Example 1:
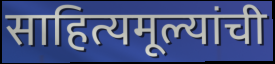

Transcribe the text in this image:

साहित्यमूल्यांची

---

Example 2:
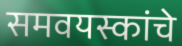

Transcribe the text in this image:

समवयस्कांचे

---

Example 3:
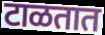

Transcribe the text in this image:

टाळतात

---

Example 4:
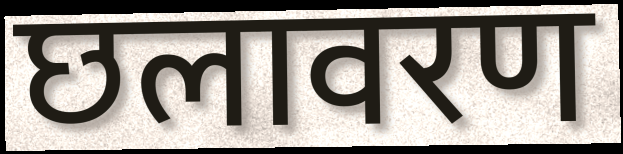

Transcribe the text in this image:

छलावरण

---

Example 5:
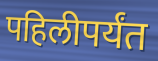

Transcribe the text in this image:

पहिलीपर्यंत